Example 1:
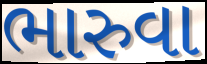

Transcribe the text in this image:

ભારુવા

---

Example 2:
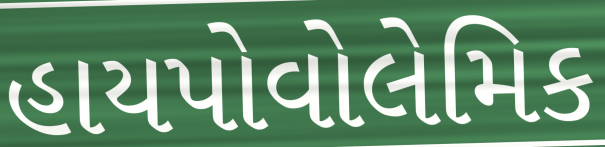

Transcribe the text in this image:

હાયપોવોલેમિક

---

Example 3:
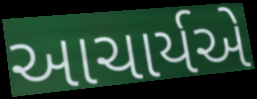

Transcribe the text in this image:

આચાર્યએ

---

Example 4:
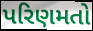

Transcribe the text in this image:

પરિણમતો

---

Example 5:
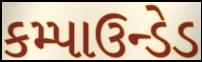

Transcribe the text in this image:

કમ્પાઉન્ડેડ